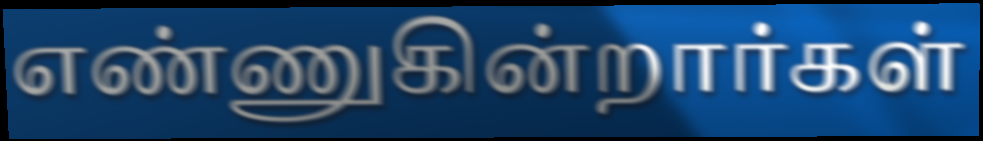
எண்ணுகின்றார்கள்